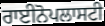
ਰਾਈਨੋਪਲਾਸਟੀ